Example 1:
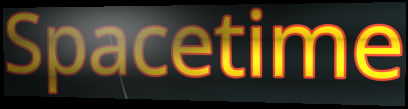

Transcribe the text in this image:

Spacetime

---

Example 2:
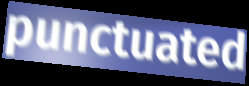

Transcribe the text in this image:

punctuated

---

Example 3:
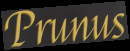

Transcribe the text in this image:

Prunus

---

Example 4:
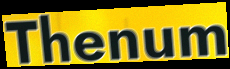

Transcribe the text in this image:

Thenum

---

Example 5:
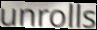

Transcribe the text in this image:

unrolls